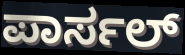
ಪಾರ್ಸಲ್